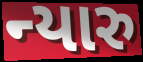
ન્યારુ